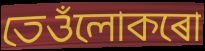
তেওঁলোকৰো